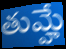
తుమ్హే